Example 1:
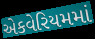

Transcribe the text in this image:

એકવેરિયમમાં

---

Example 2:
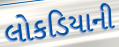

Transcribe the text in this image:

લોકડિયાની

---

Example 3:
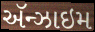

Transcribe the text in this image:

ઍન્ઝાઇમ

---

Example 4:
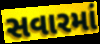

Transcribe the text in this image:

સવારમાં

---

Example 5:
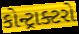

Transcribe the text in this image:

કોન્ટ્રાક્ટરો